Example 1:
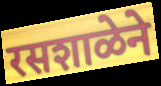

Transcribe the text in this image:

रसशाळेने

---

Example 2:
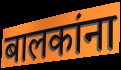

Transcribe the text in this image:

बालकांना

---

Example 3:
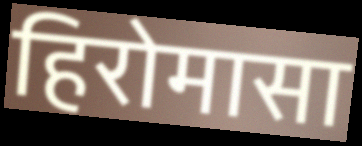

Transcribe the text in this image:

हिरोमासा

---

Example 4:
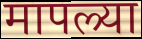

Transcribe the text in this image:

मापल्या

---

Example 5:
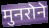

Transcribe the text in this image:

मुनरोने